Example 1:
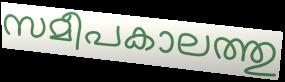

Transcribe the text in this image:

സമീപകാലത്തു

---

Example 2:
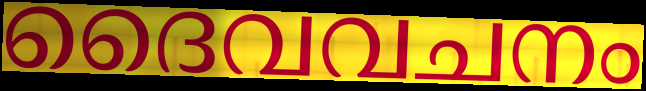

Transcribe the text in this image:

ദൈവവചനം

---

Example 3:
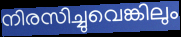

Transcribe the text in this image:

നിരസിച്ചുവെങ്കിലും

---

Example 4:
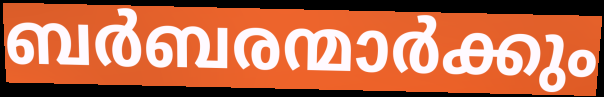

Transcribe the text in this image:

ബർബരന്മാർക്കും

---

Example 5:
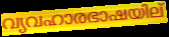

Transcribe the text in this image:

വ്യവഹാരഭാഷയില്